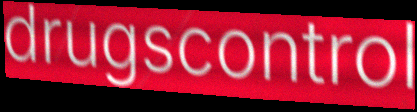
drugscontrol